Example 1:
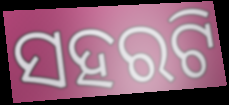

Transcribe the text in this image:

ସହରଟି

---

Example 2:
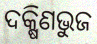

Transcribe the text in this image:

ଦକ୍ଷିଣଭୁଜ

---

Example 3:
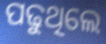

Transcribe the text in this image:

ପଢୁଥିଲେ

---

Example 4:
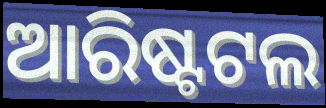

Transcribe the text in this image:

ଆରିଷ୍ଟଟଲ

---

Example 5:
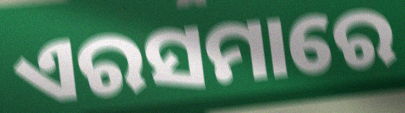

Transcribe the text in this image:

ଏରସମାରେ